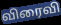
விரைவி